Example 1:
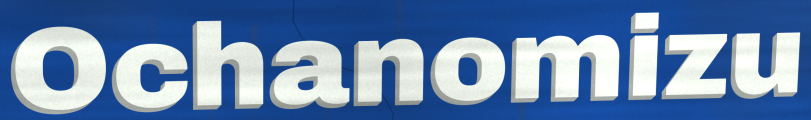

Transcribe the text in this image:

Ochanomizu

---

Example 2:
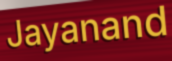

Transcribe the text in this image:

Jayanand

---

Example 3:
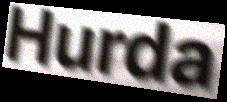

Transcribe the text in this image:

Hurda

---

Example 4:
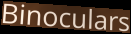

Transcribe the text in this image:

Binoculars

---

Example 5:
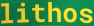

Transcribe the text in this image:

lithos